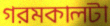
গরমকালটা